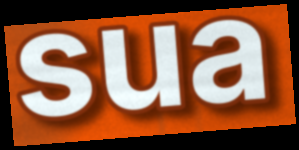
sua